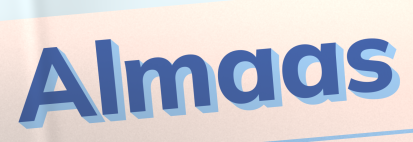
Almaas